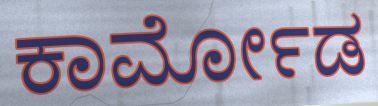
ಕಾರ್ಮೋಡ